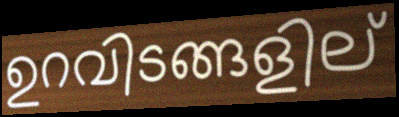
ഉറവിടങ്ങളില്